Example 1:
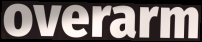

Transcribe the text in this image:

overarm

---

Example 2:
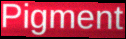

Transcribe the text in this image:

Pigment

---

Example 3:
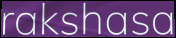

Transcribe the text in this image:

rakshasa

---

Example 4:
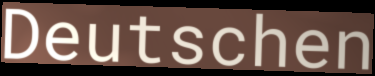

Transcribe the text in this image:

Deutschen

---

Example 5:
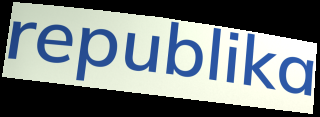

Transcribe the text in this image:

republika